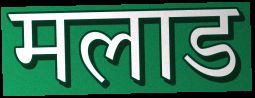
मलाड